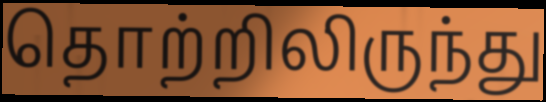
தொற்றிலிருந்து